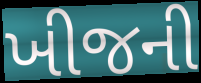
ખીજની